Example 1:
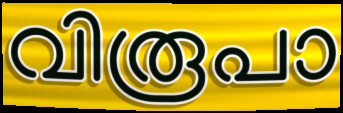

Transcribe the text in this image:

വിരൂപാ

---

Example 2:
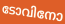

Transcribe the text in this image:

ടോവിനോ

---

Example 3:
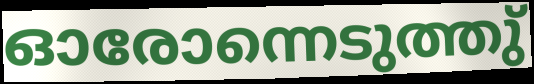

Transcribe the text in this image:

ഓരോന്നെടുത്തു്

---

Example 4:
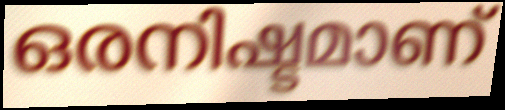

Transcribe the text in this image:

ഒരനിഷ്ടമാണ്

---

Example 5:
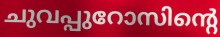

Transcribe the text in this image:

ചുവപ്പുറോസിന്റെ